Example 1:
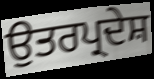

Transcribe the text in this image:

ਉਤਰਪ੍ਰਦੇਸ਼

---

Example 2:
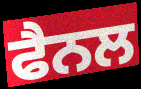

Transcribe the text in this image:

ਫੈਨਲ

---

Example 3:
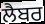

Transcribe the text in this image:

ਲੈਬਰ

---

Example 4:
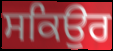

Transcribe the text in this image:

ਸਕਿਉਰ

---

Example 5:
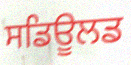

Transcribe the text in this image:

ਸਡਿਊਲਡ